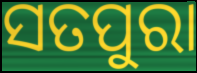
ସତପୁରା